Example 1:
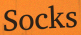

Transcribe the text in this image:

Socks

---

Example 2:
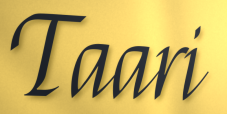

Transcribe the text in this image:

Taari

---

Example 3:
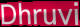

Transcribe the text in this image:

Dhruvi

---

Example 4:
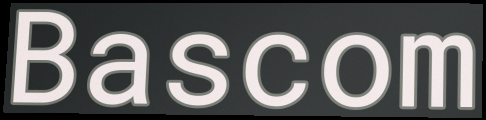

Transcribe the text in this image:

Bascom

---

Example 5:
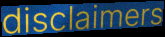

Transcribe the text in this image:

disclaimers